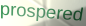
prospered